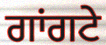
ਗਾਂਗਟੇ